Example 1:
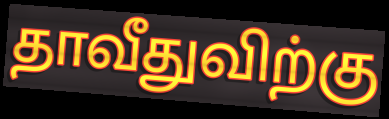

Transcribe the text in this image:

தாவீதுவிற்கு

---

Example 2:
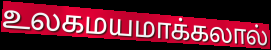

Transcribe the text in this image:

உலகமயமாக்கலால்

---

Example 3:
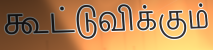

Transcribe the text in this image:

கூட்டுவிக்கும்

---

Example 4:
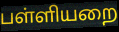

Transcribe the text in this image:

பள்ளியறை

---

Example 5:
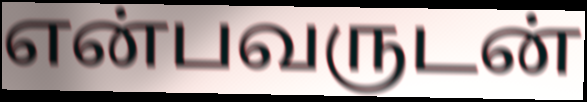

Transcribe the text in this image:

என்பவருடன்